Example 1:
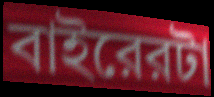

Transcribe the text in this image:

বাইরেরটা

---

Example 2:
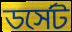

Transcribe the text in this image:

ডর্সেট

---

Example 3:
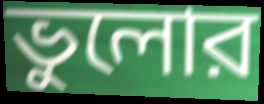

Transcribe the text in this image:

ভুলোর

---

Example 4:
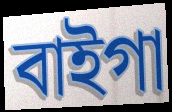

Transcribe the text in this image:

বাইগা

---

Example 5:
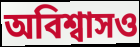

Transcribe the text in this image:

অবিশ্বাসও